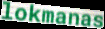
lokmanas